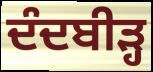
ਦੰਦਬੀੜ੍ਹ